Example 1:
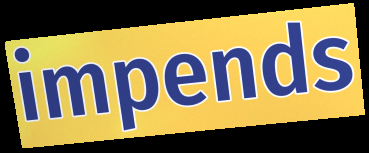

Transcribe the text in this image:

impends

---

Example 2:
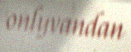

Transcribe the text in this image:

onlyvandan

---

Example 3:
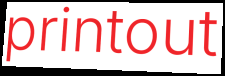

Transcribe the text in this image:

printout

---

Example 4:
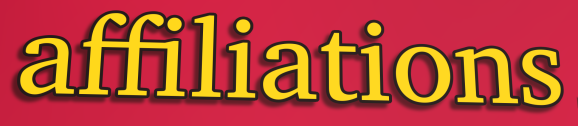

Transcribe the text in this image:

affiliations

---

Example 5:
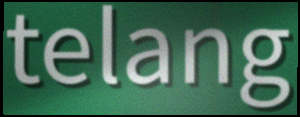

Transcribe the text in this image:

telang